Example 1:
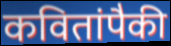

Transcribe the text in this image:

कवितांपैकी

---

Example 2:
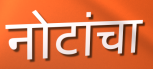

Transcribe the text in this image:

नोटांचा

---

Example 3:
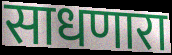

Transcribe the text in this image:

साधणारा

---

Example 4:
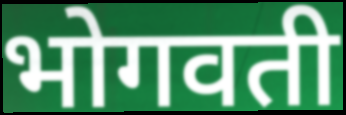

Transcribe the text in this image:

भोगवती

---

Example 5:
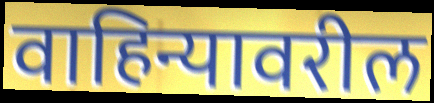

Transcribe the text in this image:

वाहिन्यावरील